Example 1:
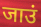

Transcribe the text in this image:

जाउं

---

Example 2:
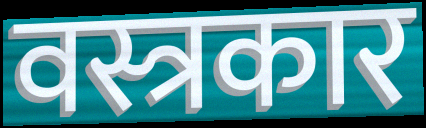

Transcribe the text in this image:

वस्त्रकार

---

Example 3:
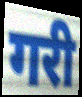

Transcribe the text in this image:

गरी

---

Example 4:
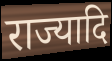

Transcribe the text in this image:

राज्यादि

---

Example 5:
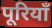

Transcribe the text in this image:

पूरियाँ